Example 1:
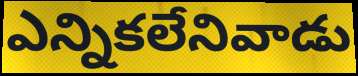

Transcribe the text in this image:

ఎన్నికలేనివాడు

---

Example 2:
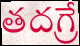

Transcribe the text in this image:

తదగ్రే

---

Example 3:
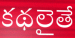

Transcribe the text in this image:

కథలైతే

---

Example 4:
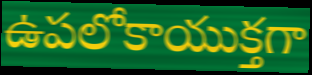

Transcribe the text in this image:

ఉపలోకాయుక్తగా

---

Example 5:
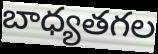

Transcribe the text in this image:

బాధ్యతగల